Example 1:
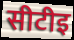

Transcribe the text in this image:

सीटीइ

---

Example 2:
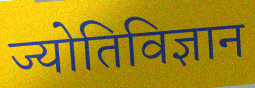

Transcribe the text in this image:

ज्योतिविज्ञान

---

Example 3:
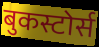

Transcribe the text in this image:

बुकस्टोर्स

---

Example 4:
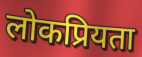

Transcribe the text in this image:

लोकप्रियता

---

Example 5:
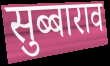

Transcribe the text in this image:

सुब्बाराव